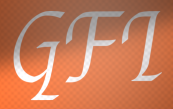
GFI